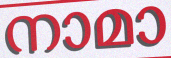
നാമാ